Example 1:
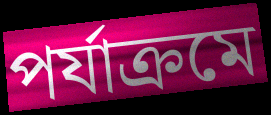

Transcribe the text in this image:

পর্যাক্রমে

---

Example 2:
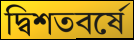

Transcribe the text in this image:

দ্বিশতবর্ষে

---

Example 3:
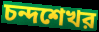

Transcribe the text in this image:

চন্দশেখর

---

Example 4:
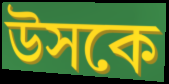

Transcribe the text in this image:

উসকে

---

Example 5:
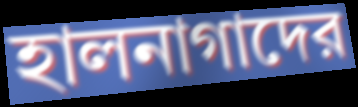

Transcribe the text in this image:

হালনাগাদের